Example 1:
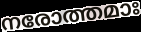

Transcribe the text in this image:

നരോത്തമാഃ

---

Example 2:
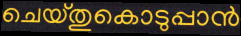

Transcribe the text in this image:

ചെയ്തുകൊടുപ്പാൻ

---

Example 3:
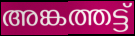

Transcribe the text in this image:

അങ്കത്തട്ട്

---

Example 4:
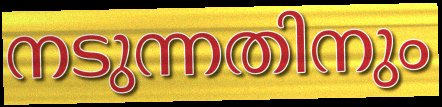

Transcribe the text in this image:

നടുന്നതിനും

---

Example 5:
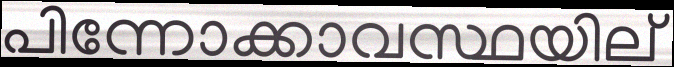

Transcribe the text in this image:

പിന്നോക്കാവസ്ഥയില്